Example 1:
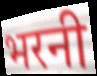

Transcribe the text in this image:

भरनी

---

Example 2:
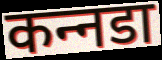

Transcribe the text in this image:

कन्नडा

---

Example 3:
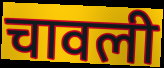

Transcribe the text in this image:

चावली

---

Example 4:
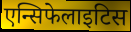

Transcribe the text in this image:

एन्सिफेलाइटिस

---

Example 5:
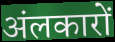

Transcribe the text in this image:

अंलकारों